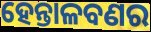
ହେନ୍ତାଳବଣର